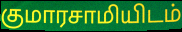
குமாரசாமியிடம்